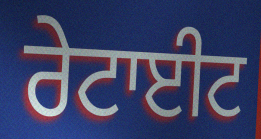
ਰੇਟਾਈਟ